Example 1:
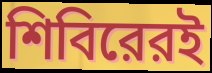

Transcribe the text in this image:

শিবিরেরই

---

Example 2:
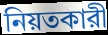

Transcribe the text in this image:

নিয়তকারী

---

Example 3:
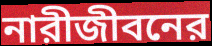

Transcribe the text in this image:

নারীজীবনের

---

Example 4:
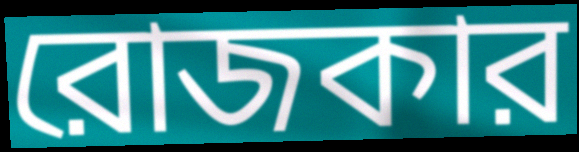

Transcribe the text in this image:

রোজকার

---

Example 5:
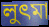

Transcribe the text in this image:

লুৎমা